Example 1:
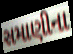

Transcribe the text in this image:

સમાણીના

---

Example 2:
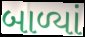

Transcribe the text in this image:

બાળ્યાં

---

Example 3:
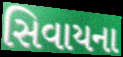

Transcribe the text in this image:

સિવાયના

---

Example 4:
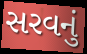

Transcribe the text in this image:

સરવનું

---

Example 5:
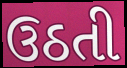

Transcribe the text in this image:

ઉઠતી